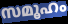
സമൂഹം